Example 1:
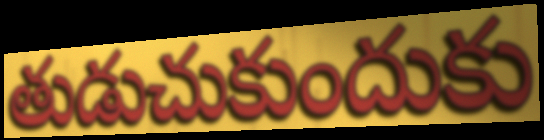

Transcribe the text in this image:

తుడుచుకుందుకు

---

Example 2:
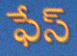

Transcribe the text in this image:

ఫేస్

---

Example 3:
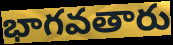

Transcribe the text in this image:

భాగవతారు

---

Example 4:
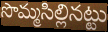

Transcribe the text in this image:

సొమ్మసిల్లినట్టు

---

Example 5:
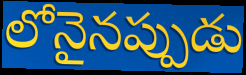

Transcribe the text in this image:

లోనైనప్పుడు